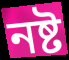
নষ্ট